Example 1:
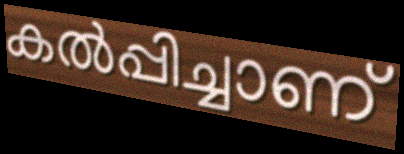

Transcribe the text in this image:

കൽപ്പിച്ചാണ്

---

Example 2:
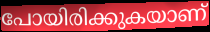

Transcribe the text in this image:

പോയിരിക്കുകയാണ്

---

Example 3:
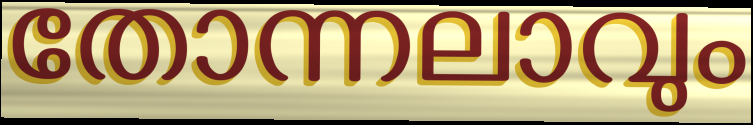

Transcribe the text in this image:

തോന്നലാവും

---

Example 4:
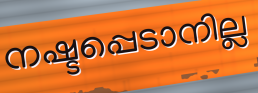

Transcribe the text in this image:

നഷ്ടപ്പെടാനില്ല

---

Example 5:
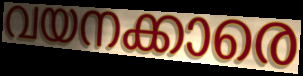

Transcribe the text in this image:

വയനക്കാരെ